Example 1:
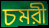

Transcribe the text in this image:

চমরী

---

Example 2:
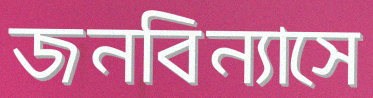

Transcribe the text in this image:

জনবিন্যাসে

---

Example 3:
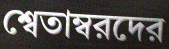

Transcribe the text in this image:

শ্বেতাম্বরদের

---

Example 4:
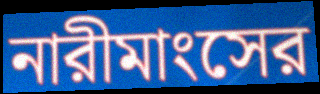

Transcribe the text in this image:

নারীমাংসের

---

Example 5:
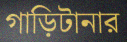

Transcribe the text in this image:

গাড়িটানার